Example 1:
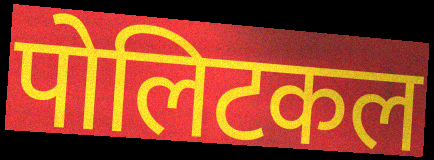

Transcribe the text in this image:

पोलिटकल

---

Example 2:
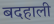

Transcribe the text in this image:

बदहाली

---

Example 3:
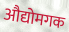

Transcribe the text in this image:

औद्योमगक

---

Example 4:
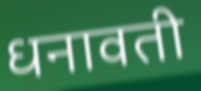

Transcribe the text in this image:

धनावती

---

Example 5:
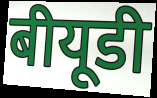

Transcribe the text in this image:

बीयूडी